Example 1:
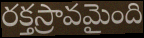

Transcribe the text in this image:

రక్తస్రావమైంది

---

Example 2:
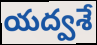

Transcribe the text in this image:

యద్వశే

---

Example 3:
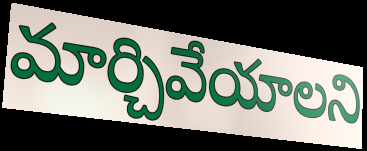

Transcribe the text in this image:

మార్చివేయాలని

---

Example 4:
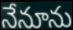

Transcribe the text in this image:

నేనూను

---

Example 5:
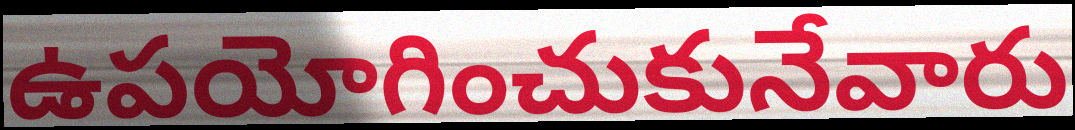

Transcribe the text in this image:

ఉపయోగించుకునేవారు